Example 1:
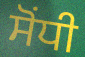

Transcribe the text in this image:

ਸੋਂਧੀ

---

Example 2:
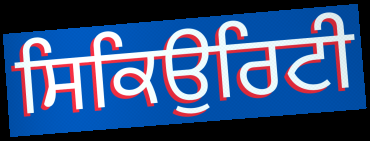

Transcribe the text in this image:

ਸਿਕਿਉਰਿਟੀ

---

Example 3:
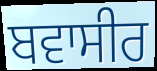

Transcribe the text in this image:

ਬਵਾਸੀਰ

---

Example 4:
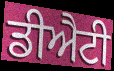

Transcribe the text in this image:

ਡੀਐਟੀ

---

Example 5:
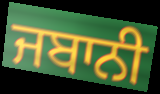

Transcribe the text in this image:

ਜਬਾਨੀ